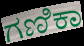
ಗಣಿಕಾ